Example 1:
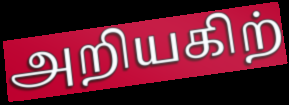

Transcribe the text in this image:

அறியகிற்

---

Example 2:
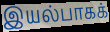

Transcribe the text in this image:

இயல்பாகக்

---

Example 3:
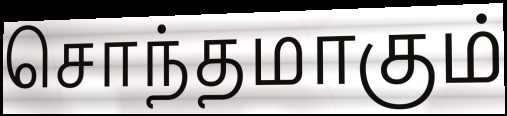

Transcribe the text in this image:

சொந்தமாகும்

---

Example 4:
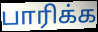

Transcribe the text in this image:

பாரிக்க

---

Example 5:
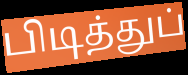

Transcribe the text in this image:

பிடித்துப்